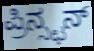
ಪ್ರಿನ್ಸ್ಟನ್